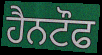
ਹੈਨਟੌਫ